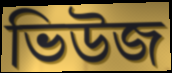
ভিউজ